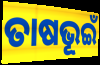
ତାଷଭୂଇଁ